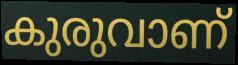
കുരുവാണ്